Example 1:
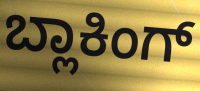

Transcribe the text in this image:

ಬ್ಲಾಕಿಂಗ್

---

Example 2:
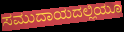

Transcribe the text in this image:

ಸಮುದಾಯದಲ್ಲಿಯೂ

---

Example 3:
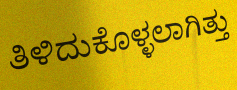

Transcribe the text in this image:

ತಿಳಿದುಕೊಳ್ಳಲಾಗಿತ್ತು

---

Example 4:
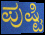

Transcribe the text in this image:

ಪುಷ್ಟಿ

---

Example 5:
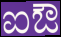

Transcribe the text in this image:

ಐಔ